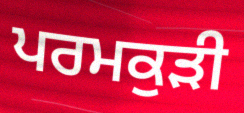
ਪਰਮਕੁੜੀ